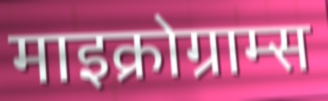
माइक्रोग्राम्स